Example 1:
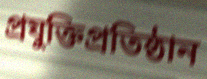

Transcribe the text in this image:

প্রযুক্তিপ্রতিষ্ঠান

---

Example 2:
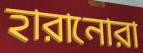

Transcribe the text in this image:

হারানোরা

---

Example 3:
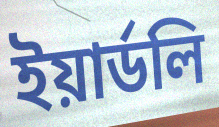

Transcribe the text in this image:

ইয়ার্ডলি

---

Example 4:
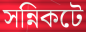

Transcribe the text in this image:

সন্নিকটে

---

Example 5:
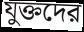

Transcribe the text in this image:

যুক্তদের